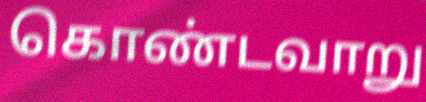
கொண்டவாறு